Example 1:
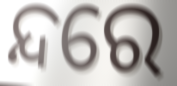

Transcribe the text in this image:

ନ୍ଦରେ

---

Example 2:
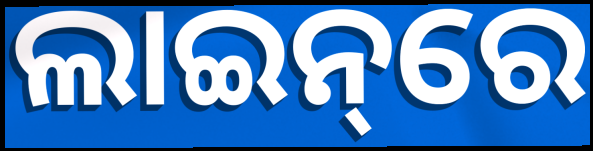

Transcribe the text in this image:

ଲାଇନ୍‌ରେ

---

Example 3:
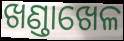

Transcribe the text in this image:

ଖଣ୍ଡାଖେଳ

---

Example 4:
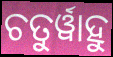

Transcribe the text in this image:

ଚତୁର୍ୱାହୁ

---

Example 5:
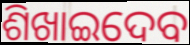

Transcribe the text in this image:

ଶିଖାଇଦେବ